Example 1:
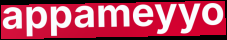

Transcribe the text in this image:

appameyyo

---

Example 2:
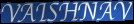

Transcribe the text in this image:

VAISHNAV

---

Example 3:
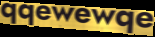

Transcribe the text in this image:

qqewewqe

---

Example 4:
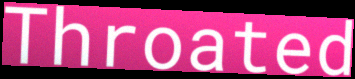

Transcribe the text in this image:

Throated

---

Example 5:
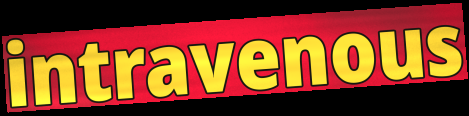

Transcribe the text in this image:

intravenous